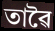
তাৱৈ